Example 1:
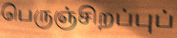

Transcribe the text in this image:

பெருஞ்சிறப்புப்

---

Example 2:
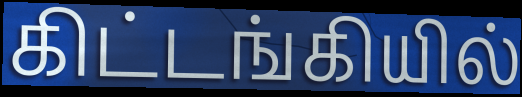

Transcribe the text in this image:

கிட்டங்கியில்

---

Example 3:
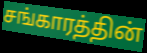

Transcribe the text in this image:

சங்காரத்தின்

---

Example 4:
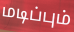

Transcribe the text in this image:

மடிப்பும்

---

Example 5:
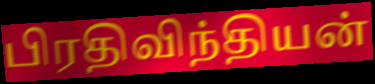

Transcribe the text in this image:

பிரதிவிந்தியன்